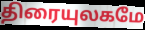
திரையுலகமே